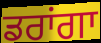
ਡਰਾਂਗਾ